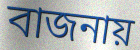
বাজনায়